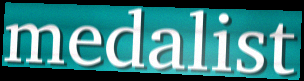
medalist